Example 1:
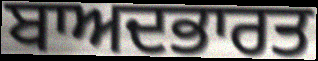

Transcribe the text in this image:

ਬਾਅਦਭਾਰਤ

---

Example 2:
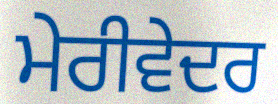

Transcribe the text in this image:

ਮੇਰੀਵੇਦਰ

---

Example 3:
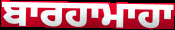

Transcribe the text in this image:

ਬਾਰਹਾਮਾਹਾ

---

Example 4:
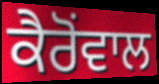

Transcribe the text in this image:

ਕੈਰੋਂਵਾਲ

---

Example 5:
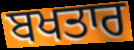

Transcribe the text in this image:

ਬਖਤਾਰ